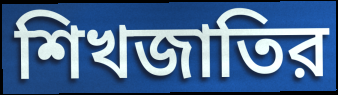
শিখজাতির